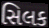
સિલક